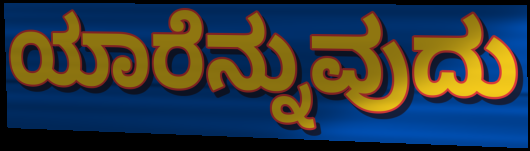
ಯಾರೆನ್ನುವುದು